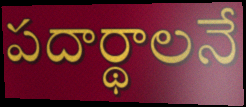
పదార్థాలనే